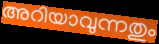
അറിയാവുന്നതും